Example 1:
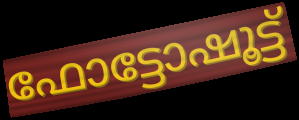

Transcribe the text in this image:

ഫോട്ടോഷൂട്ട്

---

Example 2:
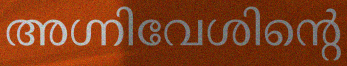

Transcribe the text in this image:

അഗ്നിവേശിന്റെ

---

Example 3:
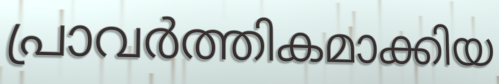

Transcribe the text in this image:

പ്രാവർത്തികമാക്കിയ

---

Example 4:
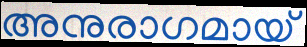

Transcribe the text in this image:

അനുരാഗമായ്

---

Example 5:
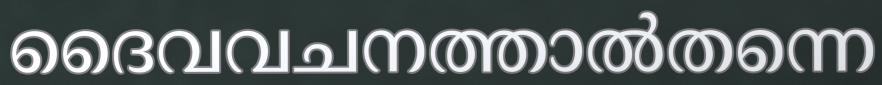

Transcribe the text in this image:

ദൈവവചനത്താൽതന്നെ